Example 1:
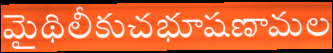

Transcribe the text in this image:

మైథిలీకుచభూషణామల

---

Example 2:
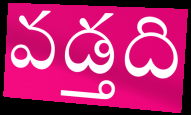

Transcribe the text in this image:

వడ్తది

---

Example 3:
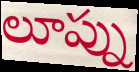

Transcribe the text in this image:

లూప్ను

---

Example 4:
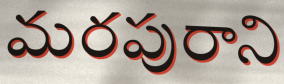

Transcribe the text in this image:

మరపురాని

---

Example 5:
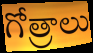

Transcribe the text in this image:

గోత్రాలు